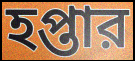
হপ্তার